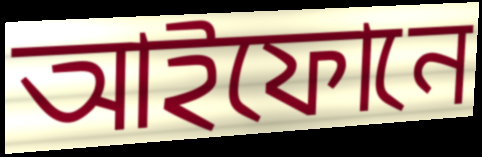
আইফোনে